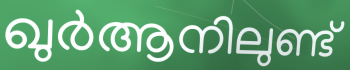
ഖുർആനിലുണ്ട്